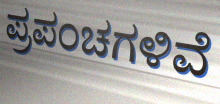
ಪ್ರಪಂಚಗಳಿವೆ